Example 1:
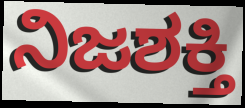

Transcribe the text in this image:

ನಿಜಶಕ್ತಿ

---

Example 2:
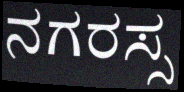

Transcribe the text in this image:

ನಗರಸ್ಸ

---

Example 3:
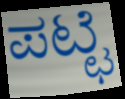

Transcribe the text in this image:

ಪಟ್ಟೆ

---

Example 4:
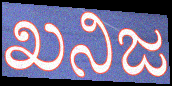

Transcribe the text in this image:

ಖನಿಜ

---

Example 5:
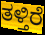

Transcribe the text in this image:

ತಳ್ತಿರೆ